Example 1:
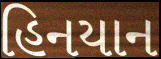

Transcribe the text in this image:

હિનયાન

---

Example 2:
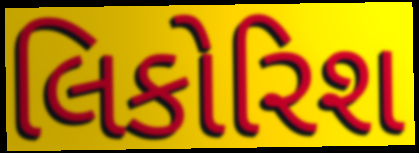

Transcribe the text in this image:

લિકોરિશ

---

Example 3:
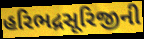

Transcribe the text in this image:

હરિભદ્રસૂરિજીની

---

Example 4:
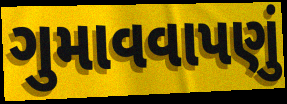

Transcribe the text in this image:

ગુમાવવાપણું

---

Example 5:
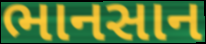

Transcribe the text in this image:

ભાનસાન